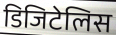
डिजिटेलिस